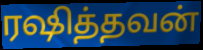
ரஷித்தவன்